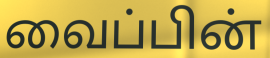
வைப்பின்